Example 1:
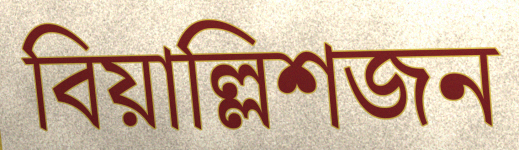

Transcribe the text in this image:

বিয়াল্লিশজন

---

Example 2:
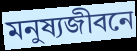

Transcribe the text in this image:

মনুষ্যজীবনে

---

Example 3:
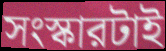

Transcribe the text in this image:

সংস্কারটাই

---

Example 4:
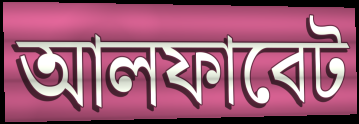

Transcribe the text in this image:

আলফাবেট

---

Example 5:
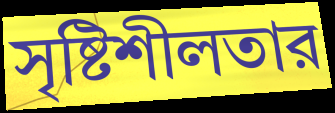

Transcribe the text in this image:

সৃষ্টিশীলতার